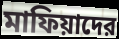
মাফিয়াদের